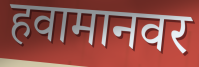
हवामानवर